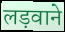
लड़वाने